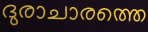
ദുരാചാരത്തെ